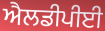
ਐਲਡੀਪੀਈ